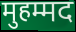
मुहम्मद